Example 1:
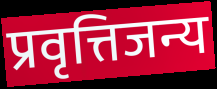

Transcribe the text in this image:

प्रवृत्तिजन्य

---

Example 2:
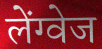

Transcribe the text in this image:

लेंग्वेज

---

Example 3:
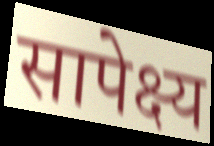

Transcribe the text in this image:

सापेक्ष्य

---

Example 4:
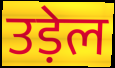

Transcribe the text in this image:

उड़ेल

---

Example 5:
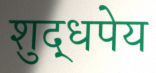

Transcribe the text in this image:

शुद्धपेय